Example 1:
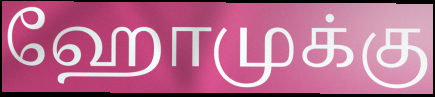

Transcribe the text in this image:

ஹோமுக்கு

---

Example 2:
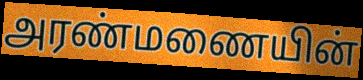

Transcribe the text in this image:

அரண்மணையின்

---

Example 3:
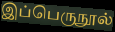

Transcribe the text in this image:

இப்பெருநூல்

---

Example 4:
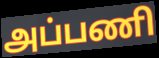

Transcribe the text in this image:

அப்பணி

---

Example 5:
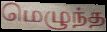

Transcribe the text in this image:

மெழுந்த